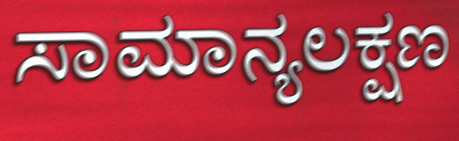
ಸಾಮಾನ್ಯಲಕ್ಷಣ